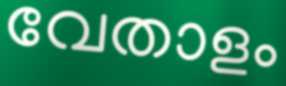
വേതാളം